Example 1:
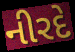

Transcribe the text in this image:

નીરદે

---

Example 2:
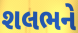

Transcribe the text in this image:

શલભને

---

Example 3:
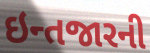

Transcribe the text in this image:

ઇન્તજારની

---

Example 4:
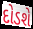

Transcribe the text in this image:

દોડશે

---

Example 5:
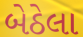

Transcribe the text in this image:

બેઠેલા